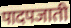
पादपजाती